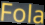
Fola